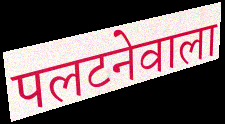
पलटनेवाला